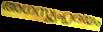
അഗസ്ത്യഹൃദയം